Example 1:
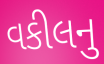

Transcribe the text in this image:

વકીલનુ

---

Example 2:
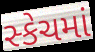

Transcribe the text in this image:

સ્કેચમાં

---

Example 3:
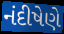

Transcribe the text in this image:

નંદીષેણે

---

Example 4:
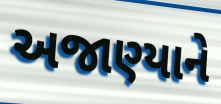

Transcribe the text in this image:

અજાણ્યાને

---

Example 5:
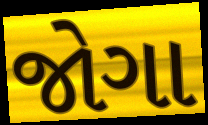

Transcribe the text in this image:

જોગા